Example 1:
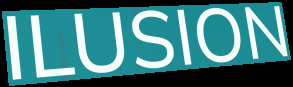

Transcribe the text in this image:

ILUSION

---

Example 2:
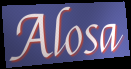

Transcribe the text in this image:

Alosa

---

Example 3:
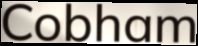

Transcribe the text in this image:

Cobham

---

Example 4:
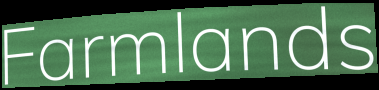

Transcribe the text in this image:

Farmlands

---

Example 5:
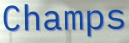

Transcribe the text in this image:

Champs